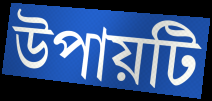
উপায়টি